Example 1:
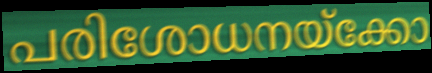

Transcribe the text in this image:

പരിശോധനയ്ക്കോ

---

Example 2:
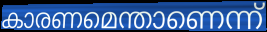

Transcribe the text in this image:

കാരണമെന്താണെന്ന്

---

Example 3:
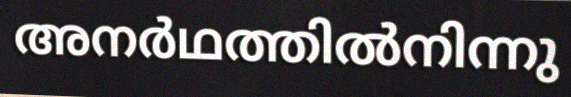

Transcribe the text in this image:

അനർഥത്തിൽനിന്നു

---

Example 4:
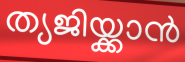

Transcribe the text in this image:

ത്യജിയ്ക്കാൻ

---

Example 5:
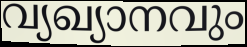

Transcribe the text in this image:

വ്യഖ്യാനവും